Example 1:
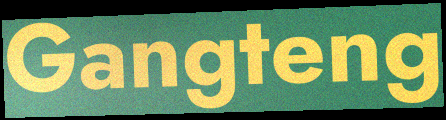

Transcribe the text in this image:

Gangteng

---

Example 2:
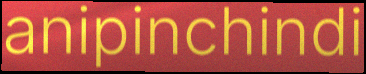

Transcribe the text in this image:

anipinchindi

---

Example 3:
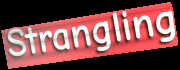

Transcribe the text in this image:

Strangling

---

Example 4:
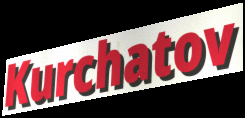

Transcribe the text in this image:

Kurchatov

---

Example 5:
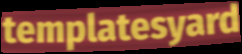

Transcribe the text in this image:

templatesyard